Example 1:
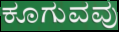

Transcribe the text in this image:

ಕೂಗುವವು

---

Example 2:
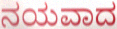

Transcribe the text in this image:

ನಯವಾದ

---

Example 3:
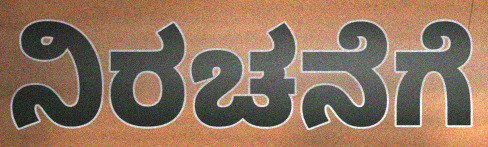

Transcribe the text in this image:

ನಿರಚನೆಗೆ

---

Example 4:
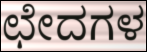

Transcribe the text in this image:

ಛೇದಗಳ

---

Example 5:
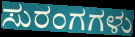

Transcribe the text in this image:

ಸುರಂಗಗಳು